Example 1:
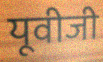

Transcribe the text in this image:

यूवीजी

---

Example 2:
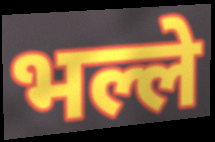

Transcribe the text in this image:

भल्ले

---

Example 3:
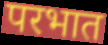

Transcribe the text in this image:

परभात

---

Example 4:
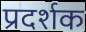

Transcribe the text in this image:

प्रदर्शक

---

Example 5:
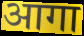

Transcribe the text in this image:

आगा